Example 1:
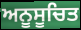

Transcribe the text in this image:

ਅਨੂਸੂਚਿਤ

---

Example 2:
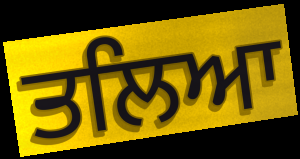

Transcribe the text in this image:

ਤਲਿਆ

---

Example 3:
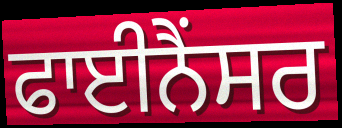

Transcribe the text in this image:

ਫਾਈਨੈਂਸਰ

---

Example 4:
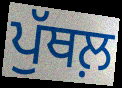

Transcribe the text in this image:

ਪੁੱਥਲ਼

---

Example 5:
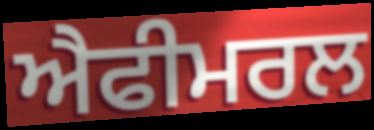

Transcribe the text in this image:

ਐਫੀਮਰਲ